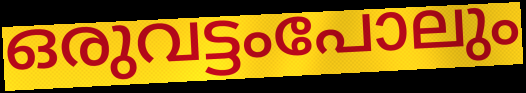
ഒരുവട്ടംപോലും